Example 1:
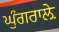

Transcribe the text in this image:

ਘੁੰਗਰਾਲ਼ੇ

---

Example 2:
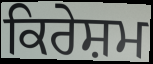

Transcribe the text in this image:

ਕਿਰੇਸ਼ਮ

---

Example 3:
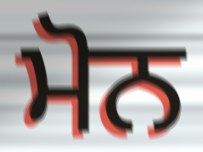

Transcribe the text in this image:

ਮੋਨ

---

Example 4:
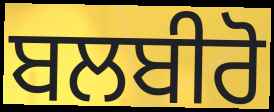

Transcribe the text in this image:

ਬਲਬੀਰੋ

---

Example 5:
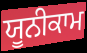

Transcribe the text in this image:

ਯੂਨੀਕਾਮ